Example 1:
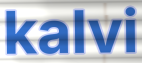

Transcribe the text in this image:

kalvi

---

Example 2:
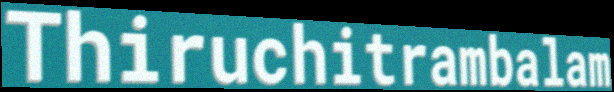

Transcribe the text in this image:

Thiruchitrambalam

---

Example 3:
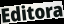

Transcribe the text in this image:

Editora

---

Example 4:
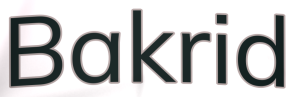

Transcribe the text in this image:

Bakrid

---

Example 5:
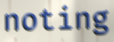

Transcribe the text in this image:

noting